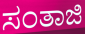
ಸಂತಾಜಿ